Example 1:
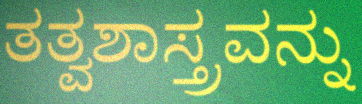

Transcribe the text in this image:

ತತ್ವಶಾಸ್ತ್ರವನ್ನು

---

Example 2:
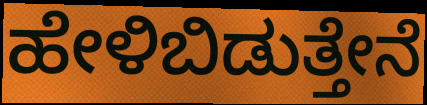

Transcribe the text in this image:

ಹೇಳಿಬಿಡುತ್ತೇನೆ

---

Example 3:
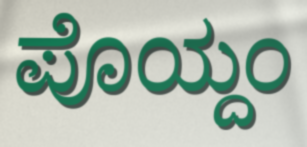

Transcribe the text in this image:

ಪೊಯ್ದಂ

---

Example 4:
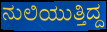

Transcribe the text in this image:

ನುಲಿಯುತ್ತಿದ್ದ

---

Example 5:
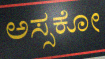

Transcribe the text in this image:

ಅಸ್ಸಕೋ